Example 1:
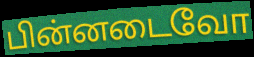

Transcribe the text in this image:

பின்னடைவோ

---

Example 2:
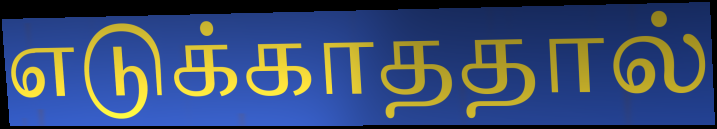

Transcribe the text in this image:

எடுக்காததால்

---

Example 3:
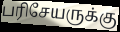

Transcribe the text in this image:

பரிசேயருக்கு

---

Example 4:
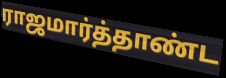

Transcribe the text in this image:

ராஜமார்த்தாண்ட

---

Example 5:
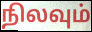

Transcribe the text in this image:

நிலவும்